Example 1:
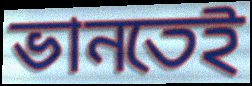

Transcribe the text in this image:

ভানতেই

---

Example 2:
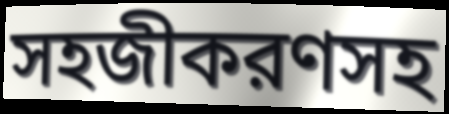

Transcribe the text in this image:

সহজীকরণসহ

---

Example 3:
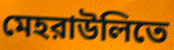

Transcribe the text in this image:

মেহরাউলিতে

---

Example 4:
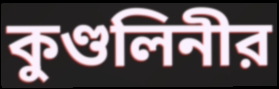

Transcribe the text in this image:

কুণ্ডলিনীর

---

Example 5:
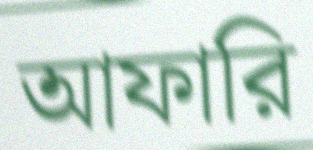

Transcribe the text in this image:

আফারি